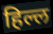
हिल्ल